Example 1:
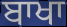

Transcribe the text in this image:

ਬਾਖਾ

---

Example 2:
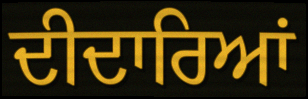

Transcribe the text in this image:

ਦੀਦਾਰਿਆਂ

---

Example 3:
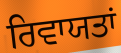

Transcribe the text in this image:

ਰਿਵਾਯਤਾਂ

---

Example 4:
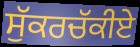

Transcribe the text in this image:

ਸੁੱਕਰਚੱਕੀਏ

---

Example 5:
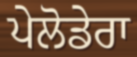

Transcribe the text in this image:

ਪੇਲੋਡੇਰਾ